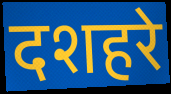
दशहरे